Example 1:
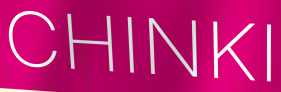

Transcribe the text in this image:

CHINKI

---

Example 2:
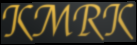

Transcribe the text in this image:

KMRK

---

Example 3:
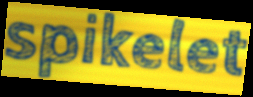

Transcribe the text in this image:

spikelet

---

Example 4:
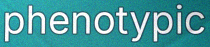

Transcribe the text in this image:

phenotypic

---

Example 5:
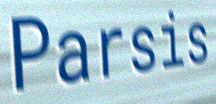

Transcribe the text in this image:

Parsis